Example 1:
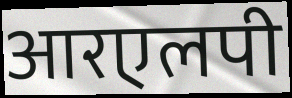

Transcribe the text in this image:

आरएलपी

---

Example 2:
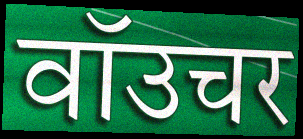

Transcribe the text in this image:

वॉउचर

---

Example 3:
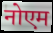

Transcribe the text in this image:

नोएम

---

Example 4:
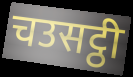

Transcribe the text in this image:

चउसट्ठी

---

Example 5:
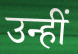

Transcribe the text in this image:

उन्हीं